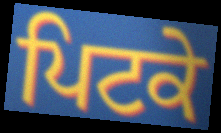
ਪਿਟਕੇ